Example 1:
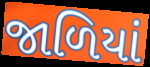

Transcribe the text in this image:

જાળિયાં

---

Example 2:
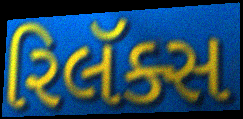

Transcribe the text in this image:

રિલૅક્સ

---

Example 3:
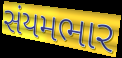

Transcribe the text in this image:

સંયમભાર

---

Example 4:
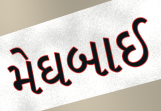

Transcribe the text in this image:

મેઘબાઈ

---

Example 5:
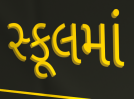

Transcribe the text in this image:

સ્કૂલમાં